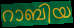
റാബിയ